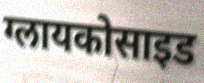
ग्लायकोसाइड